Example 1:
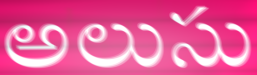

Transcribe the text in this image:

అలుసు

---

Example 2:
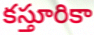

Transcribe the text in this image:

కస్తూరికా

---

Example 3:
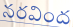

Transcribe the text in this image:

నరవింద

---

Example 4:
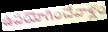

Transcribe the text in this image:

ఉపయోగించేవాళ్లం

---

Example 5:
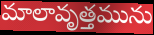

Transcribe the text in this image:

మాలావృత్తమును